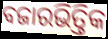
ବଜାରଭିତ୍ତିକ